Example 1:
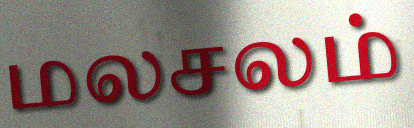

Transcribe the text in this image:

மலசலம்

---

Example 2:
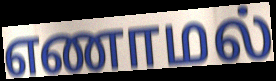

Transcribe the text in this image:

எணாமல்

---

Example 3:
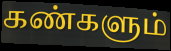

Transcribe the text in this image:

கண்களும்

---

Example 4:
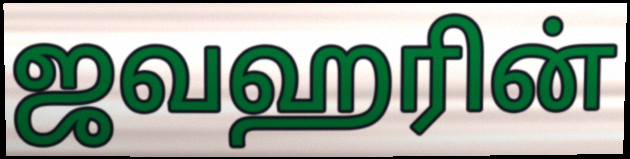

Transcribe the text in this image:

ஜவஹரின்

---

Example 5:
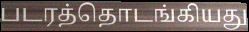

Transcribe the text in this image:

படரத்தொடங்கியது